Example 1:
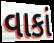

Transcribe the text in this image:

વાકાં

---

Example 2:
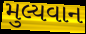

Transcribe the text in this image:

મુલ્યવાન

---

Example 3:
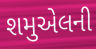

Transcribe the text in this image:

શમુએલની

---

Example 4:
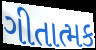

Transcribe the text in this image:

ગીતાત્મક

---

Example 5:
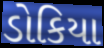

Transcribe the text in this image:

ડોકિયા